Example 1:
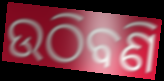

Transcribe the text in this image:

ଉଠିବଣି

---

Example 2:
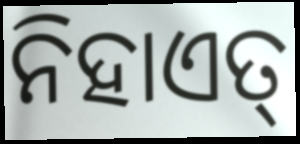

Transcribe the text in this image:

ନିହାଏତ୍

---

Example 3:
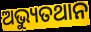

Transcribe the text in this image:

ଅଭ୍ୟୁତଥାନ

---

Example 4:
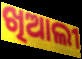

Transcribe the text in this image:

ଖିଆଲୀ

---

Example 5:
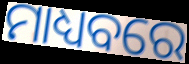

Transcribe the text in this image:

ମାଧ୍ୟବରେ